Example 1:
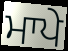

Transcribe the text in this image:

ਮਾਪੇ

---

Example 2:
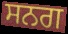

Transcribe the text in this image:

ਸਨਗ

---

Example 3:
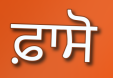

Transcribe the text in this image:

ਫ਼ਾਸੋ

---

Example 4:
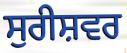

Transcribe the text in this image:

ਸੁਰੀਸ਼ਵਰ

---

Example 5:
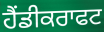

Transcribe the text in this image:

ਹੈਂਡੀਕਰਾਫਟ